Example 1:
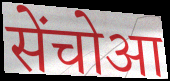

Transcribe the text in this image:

सेंचोआ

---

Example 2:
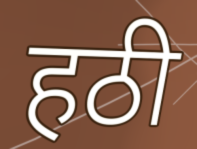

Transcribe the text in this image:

हठी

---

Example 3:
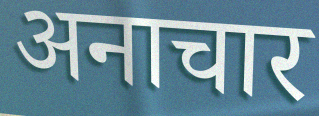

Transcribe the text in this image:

अनाचार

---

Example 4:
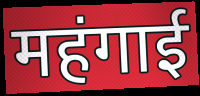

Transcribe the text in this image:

महंगाई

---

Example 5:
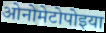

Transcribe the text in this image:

ओनोमेटोपोइया